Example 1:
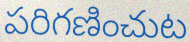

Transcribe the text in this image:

పరిగణించుట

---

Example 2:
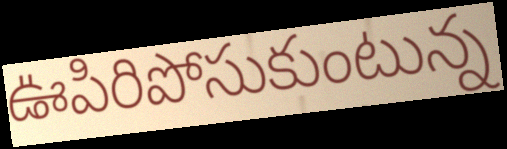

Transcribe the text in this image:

ఊపిరిపోసుకుంటున్న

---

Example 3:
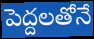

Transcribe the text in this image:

పెద్దలతోనే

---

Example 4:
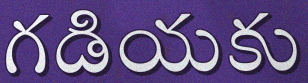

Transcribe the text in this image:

గడియకు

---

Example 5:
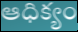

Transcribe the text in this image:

ఆధిక్యం